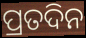
ପ୍ରତଦିନ